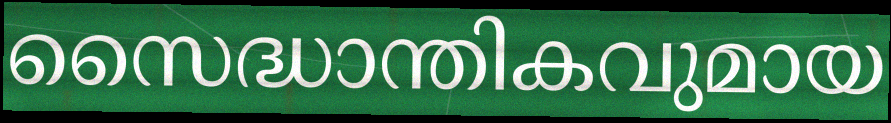
സൈദ്ധാന്തികവുമായ